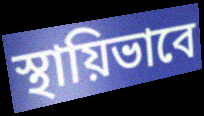
স্থায়িভাবে